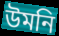
উমনি